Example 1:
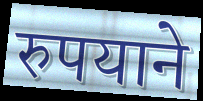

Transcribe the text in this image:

रुपयाने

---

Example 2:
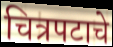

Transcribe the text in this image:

चित्रपटाचे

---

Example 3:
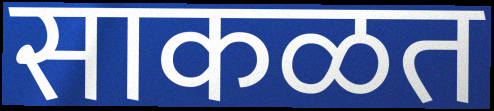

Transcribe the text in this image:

साकळत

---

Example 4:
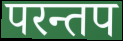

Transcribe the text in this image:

परन्तप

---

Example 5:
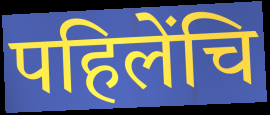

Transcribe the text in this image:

पहिलेंचि